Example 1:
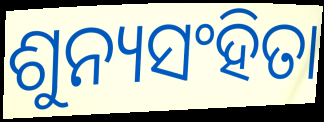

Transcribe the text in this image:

ଶୁନ୍ୟସଂହିତା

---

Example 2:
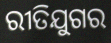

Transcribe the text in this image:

ରୀତିଯୁଗର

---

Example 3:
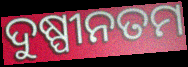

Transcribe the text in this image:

ଦୁଷ୍ପୀନତମ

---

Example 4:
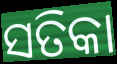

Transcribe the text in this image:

ସତିକା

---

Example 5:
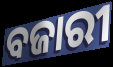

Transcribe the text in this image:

ବଜାରୀ